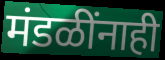
मंडळींनाही